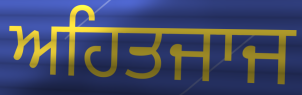
ਅਹਿਤਜਾਜ